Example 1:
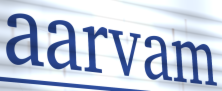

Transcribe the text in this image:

aarvam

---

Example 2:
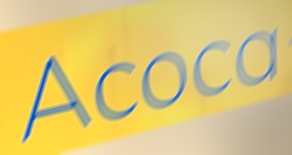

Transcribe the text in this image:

Acoca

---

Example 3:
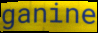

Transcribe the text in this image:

ganine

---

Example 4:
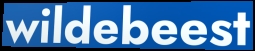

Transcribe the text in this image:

wildebeest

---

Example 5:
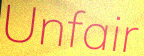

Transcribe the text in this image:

Unfair